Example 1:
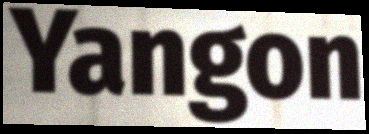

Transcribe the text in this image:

Yangon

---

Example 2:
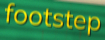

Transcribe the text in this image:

footstep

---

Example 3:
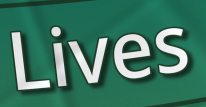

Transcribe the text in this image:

Lives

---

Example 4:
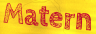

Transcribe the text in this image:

Matern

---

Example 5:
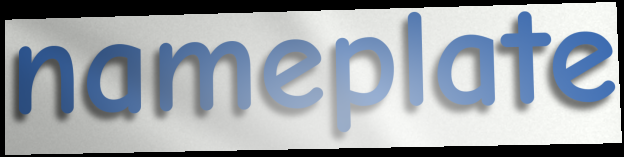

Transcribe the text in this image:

nameplate